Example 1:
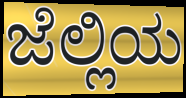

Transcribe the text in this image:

ಜೆಲ್ಲಿಯ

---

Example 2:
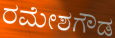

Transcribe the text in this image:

ರಮೇಶಗೌಡ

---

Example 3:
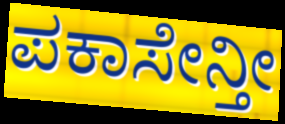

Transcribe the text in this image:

ಪಕಾಸೇನ್ತೀ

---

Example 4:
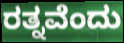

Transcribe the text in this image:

ರತ್ನವೆಂದು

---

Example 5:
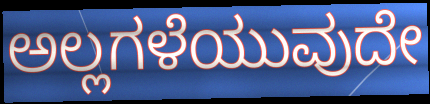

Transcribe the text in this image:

ಅಲ್ಲಗಳೆಯುವುದೇ